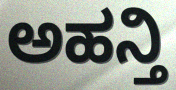
ಅಹನ್ತಿ